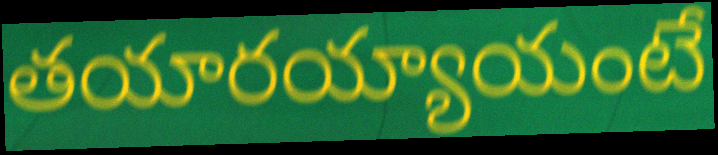
తయారయ్యాయంటే